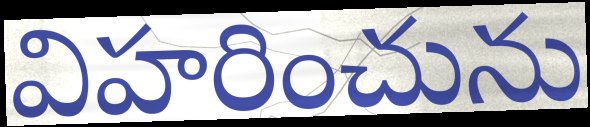
విహరించును